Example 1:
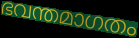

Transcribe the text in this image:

ഭവന്തമാഗതം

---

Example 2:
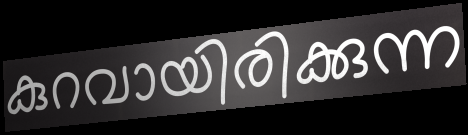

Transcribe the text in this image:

കുറവായിരിക്കുന്ന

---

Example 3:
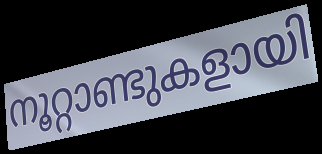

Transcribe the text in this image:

നൂറ്റാണ്ടുകളായി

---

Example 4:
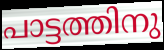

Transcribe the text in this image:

പാട്ടത്തിനു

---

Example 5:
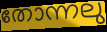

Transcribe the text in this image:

തോന്നലു